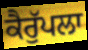
ਕੈਰੁੱਪਲਾ